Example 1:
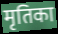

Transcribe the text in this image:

मृतिका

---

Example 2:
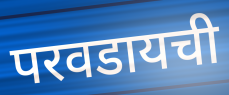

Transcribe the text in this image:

परवडायची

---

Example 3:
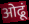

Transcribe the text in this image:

ओढूं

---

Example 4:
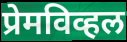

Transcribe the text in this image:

प्रेमविव्हल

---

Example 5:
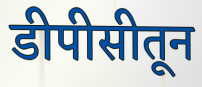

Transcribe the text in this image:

डीपीसीतून